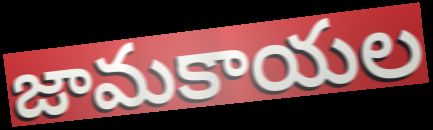
జామకాయల